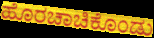
ಹೊರಚಾಚಿಕೊಂಡು